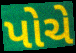
પોચે